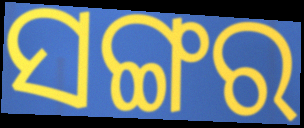
ସଙ୍ଗର